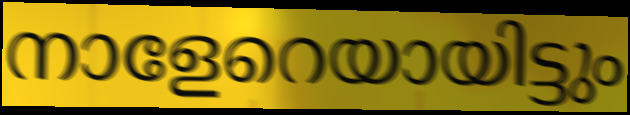
നാളേറെയായിട്ടും